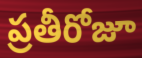
ప్రతీరోజూ